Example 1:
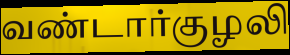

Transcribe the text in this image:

வண்டார்குழலி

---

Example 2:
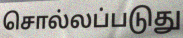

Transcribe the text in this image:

சொல்லப்படுது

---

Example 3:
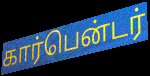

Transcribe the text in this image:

கார்பென்டர்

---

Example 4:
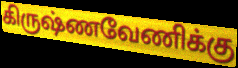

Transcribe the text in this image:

கிருஷ்ணவேணிக்கு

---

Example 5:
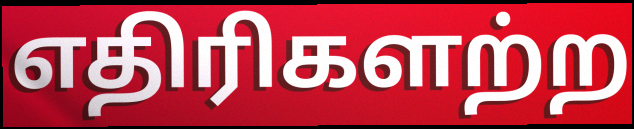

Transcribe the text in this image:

எதிரிகளற்ற